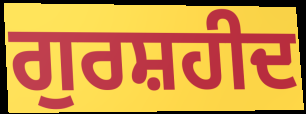
ਗੁਰਸ਼ਹੀਦ